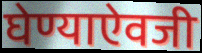
घेण्याऐवजी